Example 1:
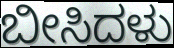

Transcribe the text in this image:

ಬೀಸಿದಳು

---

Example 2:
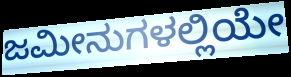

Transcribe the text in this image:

ಜಮೀನುಗಳಲ್ಲಿಯೇ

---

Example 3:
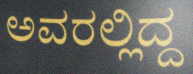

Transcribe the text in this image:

ಅವರಲ್ಲಿದ್ದ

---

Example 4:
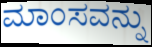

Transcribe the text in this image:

ಮಾಂಸವನ್ನು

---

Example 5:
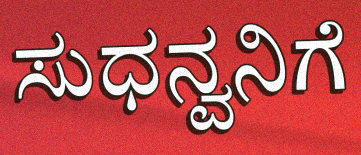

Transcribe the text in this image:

ಸುಧನ್ವನಿಗೆ